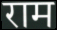
राम